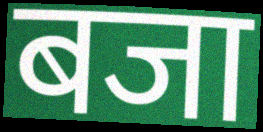
बजा